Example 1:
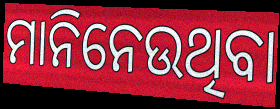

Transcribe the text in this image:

ମାନିନେଉଥିବା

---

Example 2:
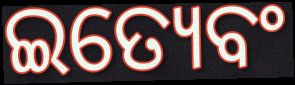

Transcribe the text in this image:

ଇତ୍ୟେବଂ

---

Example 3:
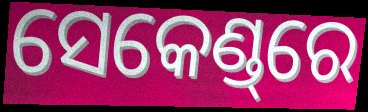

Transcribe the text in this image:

ସେକେଣ୍ଡ୍‌ରେ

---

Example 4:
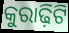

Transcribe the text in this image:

କୁରାଢ଼ିଟି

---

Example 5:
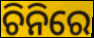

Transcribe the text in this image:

ଚିନିରେ